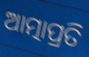
ଆତ୍ମାପ୍ରତି